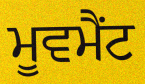
ਮੂਵਮੈਂਟ